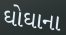
ઘોઘાના